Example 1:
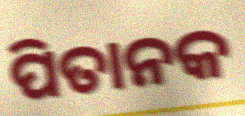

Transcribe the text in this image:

ପିତାନକ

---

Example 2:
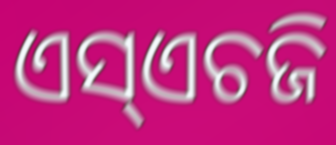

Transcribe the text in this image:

ଏସ୍ଏଚଜି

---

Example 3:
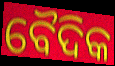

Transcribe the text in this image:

ବୈଦିକ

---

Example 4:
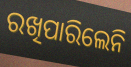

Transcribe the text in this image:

ରଖିପାରିଲେନି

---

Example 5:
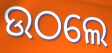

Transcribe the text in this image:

ଉଠଲେ